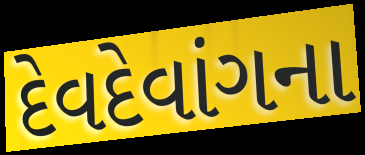
દેવદેવાંગના